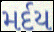
મર્દય